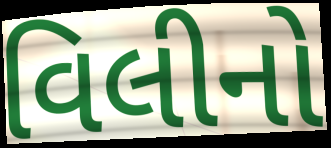
વિલીનો